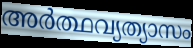
അർത്ഥവ്യത്യാസം